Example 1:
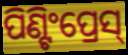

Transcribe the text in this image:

ପିଣ୍ଟିଂପ୍ରେସ୍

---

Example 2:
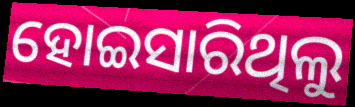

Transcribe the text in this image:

ହୋଇସାରିଥିଲୁ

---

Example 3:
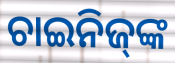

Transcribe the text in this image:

ଚାଇନିଜ୍‌ଙ୍କ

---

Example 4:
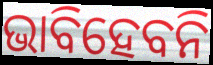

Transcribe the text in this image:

ଭାବିହେବନି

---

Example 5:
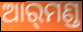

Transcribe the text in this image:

ଆର୍‌ମଣ୍ଡ